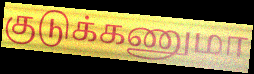
குடுக்கணுமா